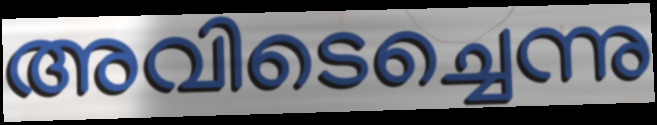
അവിടെച്ചെന്നു